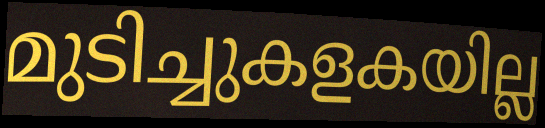
മുടിച്ചുകളകയില്ല